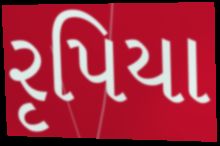
રૃપિયા